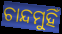
ଚାନ୍ଦମୁହିଁ